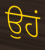
ਉਹਂ